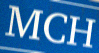
MCH